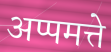
अप्पमत्ते